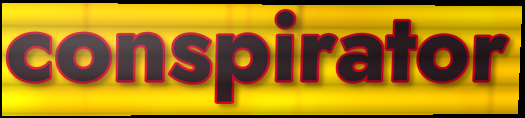
conspirator